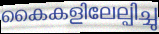
കൈകളിലേല്പിച്ചു